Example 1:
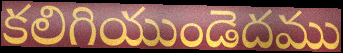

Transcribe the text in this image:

కలిగియుండెదము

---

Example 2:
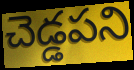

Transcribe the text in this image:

చెడ్డపని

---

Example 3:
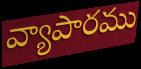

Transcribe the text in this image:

వ్యాపారము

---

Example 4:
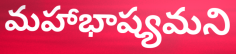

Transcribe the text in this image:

మహాభాష్యమని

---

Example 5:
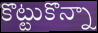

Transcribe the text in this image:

కొట్టుకొన్నా